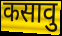
कसावु